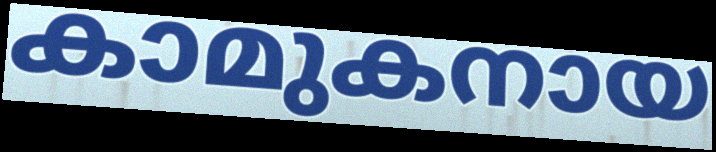
കാമുകനായ